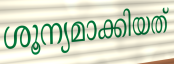
ശൂന്യമാക്കിയത്